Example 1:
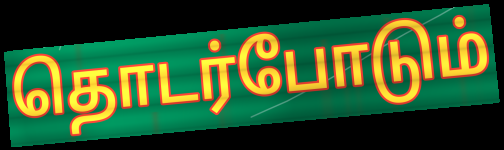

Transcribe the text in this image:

தொடர்போடும்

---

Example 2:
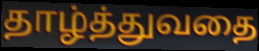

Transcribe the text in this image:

தாழ்த்துவதை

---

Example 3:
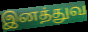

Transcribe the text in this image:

இனத்துவ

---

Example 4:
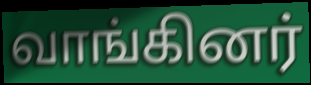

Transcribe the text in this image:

வாங்கினர்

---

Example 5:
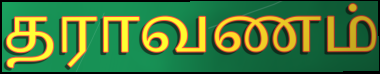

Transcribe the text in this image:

தராவணம்